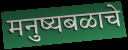
मनुष्यबळाचे